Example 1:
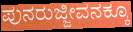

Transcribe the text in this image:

ಪುನರುಜ್ಜೀವನಕ್ಕೂ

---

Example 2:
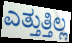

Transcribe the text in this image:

ಎತ್ತುತ್ತಿಲ್ಲ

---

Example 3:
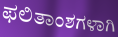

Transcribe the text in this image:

ಫಲಿತಾಂಶಗಳಾಗಿ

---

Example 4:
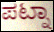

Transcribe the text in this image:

ಪಟ್ನಾ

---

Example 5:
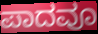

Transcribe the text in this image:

ಪಾದವೂ